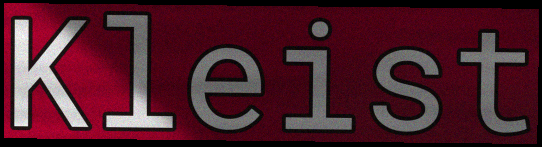
Kleist